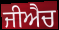
ਜੀਐਚ